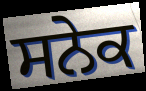
ਸਨੇਕ